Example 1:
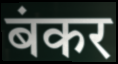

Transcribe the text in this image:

बंकर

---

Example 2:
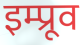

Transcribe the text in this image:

इम्प्रूव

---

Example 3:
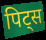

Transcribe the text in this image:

पिट्स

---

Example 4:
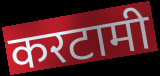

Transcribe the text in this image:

करटामी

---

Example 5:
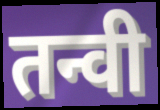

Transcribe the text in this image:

तन्वी